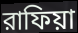
রাফিয়া